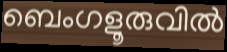
ബെംഗളൂരുവിൽ